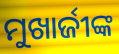
ମୁଖାର୍ଜୀଙ୍କ